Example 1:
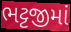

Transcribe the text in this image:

ભટ્ટજીમાં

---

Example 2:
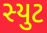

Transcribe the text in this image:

સ્યુટ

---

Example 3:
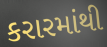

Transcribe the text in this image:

કરારમાંથી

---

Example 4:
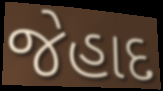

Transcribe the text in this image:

જેહાદ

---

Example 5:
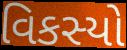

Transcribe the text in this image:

વિકસ્યો